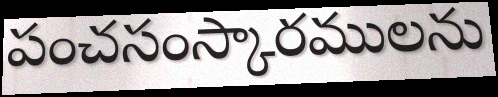
పంచసంస్కారములను